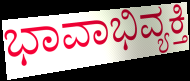
ಭಾವಾಭಿವ್ಯಕ್ತಿ